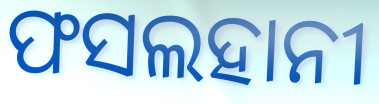
ଫସଲହାନୀ